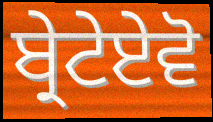
ਬ੍ਰੇਟੇਏਵੋ